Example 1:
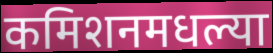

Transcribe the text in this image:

कमिशनमधल्या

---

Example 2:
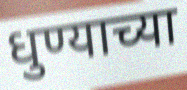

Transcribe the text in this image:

धुण्याच्या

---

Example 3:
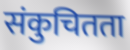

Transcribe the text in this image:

संकुचितता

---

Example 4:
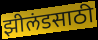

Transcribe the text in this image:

झीलंडसाठी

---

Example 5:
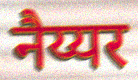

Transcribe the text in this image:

नैय्यर